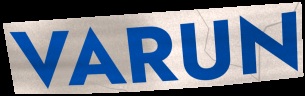
VARUN